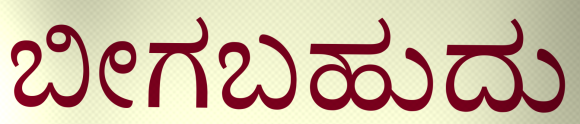
ಬೀಗಬಹುದು